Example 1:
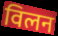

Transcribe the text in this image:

विलन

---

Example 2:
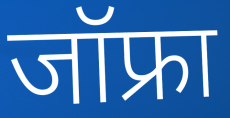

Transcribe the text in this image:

जॉफ्रा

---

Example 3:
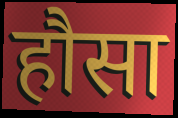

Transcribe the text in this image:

हौसा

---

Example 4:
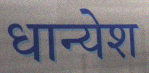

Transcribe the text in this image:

धान्येश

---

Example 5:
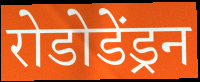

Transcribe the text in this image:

रोडोडेंड्रन